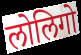
लोलिगो